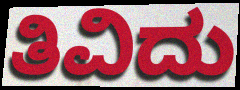
ತಿವಿದು